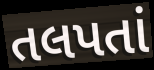
તલપતાં